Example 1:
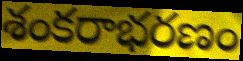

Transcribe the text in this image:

శంకరాభరణం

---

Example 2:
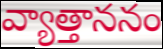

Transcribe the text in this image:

వ్యాత్తాననం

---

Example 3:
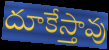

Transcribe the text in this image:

దూకేస్తావు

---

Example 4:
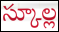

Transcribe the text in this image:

స్కూల్ల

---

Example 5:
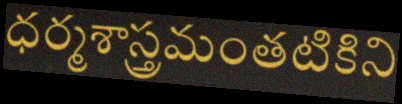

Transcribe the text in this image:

ధర్మశాస్త్రమంతటికిని